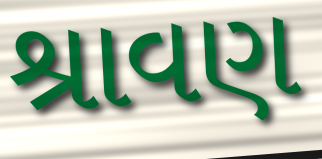
શ્રાવણ